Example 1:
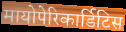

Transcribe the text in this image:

मायोपेरिकार्डिटिस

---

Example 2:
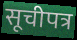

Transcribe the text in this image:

सूचीपत्र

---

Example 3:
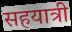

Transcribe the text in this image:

सहयात्री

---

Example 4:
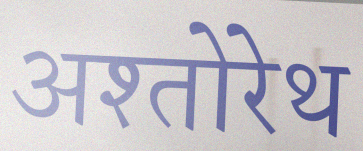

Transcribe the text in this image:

अश्तोरेथ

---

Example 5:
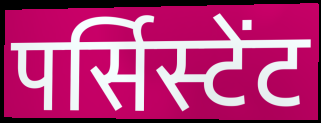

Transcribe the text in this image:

पर्सिस्टेंट